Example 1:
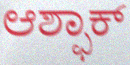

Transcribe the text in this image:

ಆಶ್ಫಾಕ್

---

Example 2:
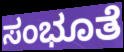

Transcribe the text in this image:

ಸಂಭೂತೆ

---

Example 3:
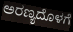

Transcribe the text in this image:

ಅರಣ್ಯದೊಳಗೆ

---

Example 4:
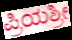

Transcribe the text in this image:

ಪ್ರಿಯಶ್ರೀ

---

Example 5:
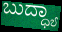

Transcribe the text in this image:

ಬುದ್ಧ್ಯಾ